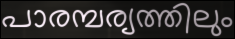
പാരമ്പര്യത്തിലും